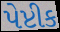
પેપ્ટીક